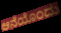
ಆನೆಯೊಂದು